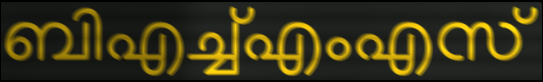
ബിഎച്ച്എംഎസ്